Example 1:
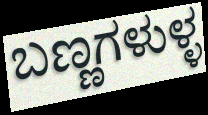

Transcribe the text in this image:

ಬಣ್ಣಗಳುಳ್ಳ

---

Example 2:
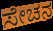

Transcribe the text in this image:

ಸೇಚನ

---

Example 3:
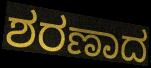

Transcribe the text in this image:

ಶರಣಾದ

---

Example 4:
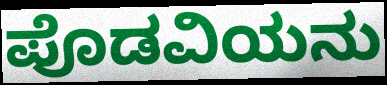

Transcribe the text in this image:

ಪೊಡವಿಯನು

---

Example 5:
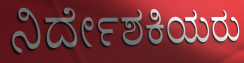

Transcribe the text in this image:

ನಿರ್ದೇಶಕಿಯರು